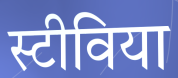
स्‍टीविया